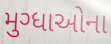
મુગ્ધાઓના